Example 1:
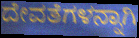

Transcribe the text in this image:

ದೇವತೆಗಳನ್ನಾಗಿ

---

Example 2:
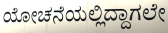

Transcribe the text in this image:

ಯೋಚನೆಯಲ್ಲಿದ್ದಾಗಲೇ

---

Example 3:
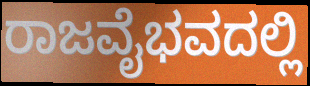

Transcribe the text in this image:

ರಾಜವೈಭವದಲ್ಲಿ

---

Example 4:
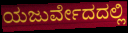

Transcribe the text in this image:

ಯಜುರ್ವೇದದಲ್ಲಿ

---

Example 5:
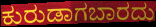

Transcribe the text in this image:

ಕುರುಡಾಗಬಾರದು